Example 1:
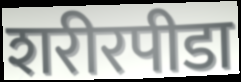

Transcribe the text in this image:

शरीरपीडा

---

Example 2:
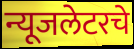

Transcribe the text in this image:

न्यूजलेटरचे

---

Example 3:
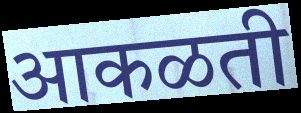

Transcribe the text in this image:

आकळती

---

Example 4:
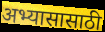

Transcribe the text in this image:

अभ्यासासाठी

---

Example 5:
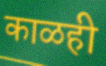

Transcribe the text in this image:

काळही